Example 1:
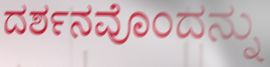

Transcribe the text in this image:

ದರ್ಶನವೊಂದನ್ನು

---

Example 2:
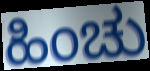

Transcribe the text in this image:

ಹಿಂಚು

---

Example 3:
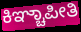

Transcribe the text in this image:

ಕಿಞ್ಚಾಪೀತಿ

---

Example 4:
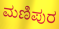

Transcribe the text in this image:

ಮಣಿಪುರ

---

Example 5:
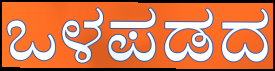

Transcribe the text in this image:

ಒಳಪಡದ